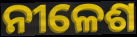
ନୀଳେଶ